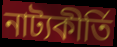
নাট্যকীর্তি